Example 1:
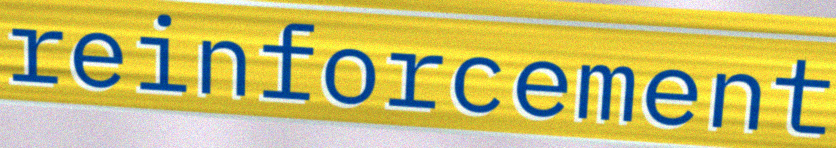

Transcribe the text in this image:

reinforcement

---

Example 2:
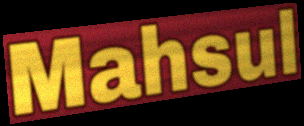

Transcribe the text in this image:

Mahsul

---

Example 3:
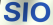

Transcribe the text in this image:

SIO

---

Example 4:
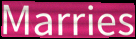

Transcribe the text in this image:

Marries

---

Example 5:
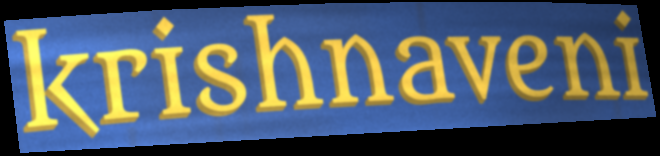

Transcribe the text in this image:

krishnaveni